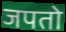
जपतो